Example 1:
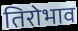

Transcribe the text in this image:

तिरोभाव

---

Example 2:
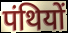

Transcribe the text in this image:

पंथियों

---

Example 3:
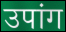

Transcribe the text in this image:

उपांग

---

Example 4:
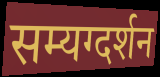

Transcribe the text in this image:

सम्‍यग्‍दर्शन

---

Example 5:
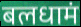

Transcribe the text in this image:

बलधामं